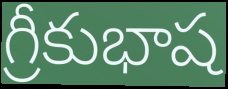
గ్రీకుభాష